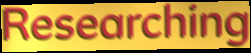
Researching